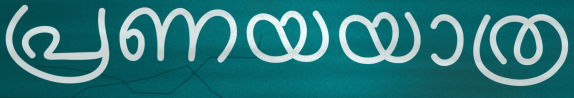
പ്രണയയാത്ര